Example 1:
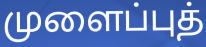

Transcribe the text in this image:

முளைப்புத்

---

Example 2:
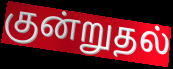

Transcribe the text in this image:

குன்றுதல்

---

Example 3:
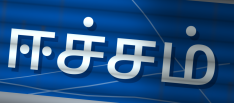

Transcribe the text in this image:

ஈச்சம்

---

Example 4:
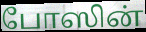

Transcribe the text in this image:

போஸின்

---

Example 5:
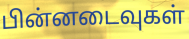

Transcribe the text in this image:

பின்னடைவுகள்